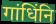
गांधिंनि